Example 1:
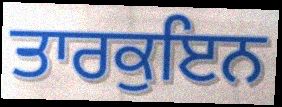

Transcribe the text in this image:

ਤਾਰਕੁਇਨ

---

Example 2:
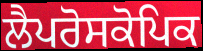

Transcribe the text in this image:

ਲੈਪਰੋਸਕੋਪਿਕ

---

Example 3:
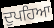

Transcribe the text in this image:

ਦੁਪਹਿਆ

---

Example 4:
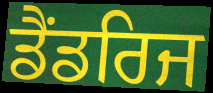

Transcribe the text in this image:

ਡੈਂਡਰਿਜ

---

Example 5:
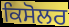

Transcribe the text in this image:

ਕਿਸੋਲਰ